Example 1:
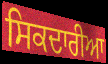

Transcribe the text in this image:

ਸਿਕਦਾਰੀਆ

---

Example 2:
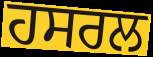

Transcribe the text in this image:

ਹਸਰਲ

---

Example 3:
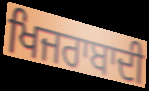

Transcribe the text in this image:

ਖਿਜਰਾਬਾਦੀ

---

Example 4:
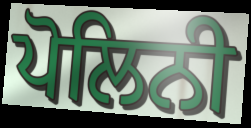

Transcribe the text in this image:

ਪੋਲਿਨੀ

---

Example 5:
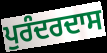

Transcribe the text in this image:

ਪੁਰੰਦਰਦਾਸ